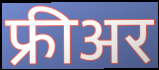
फ्रीअर